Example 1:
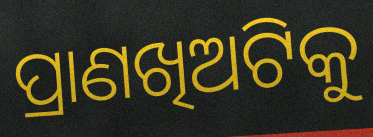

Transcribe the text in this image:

ପ୍ରାଣଖିଅଟିକୁ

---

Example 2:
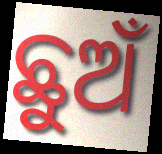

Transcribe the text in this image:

ଛୁଅଁ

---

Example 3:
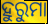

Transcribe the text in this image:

ହୁରୁମା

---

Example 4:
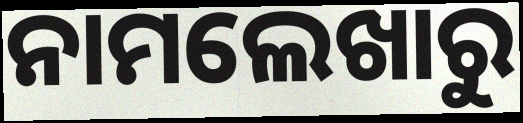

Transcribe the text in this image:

ନାମଲେଖାରୁ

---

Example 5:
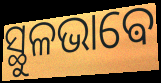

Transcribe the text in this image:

ସ୍ଥୁଳଭାଵେ